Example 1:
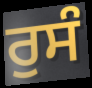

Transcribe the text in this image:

ਰੁਸੰ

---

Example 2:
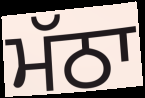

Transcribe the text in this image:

ਮੱਠਾ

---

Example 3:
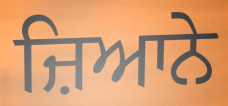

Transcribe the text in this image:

ਜ਼ਿਆਨੇ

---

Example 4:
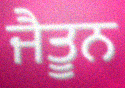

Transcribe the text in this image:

ਜੈਤੂਨ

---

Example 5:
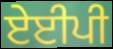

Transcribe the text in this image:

ਏਈਪੀ